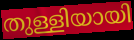
തുള്ളിയായി